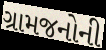
ગ્રામજનોની